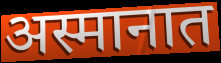
अस्मानात